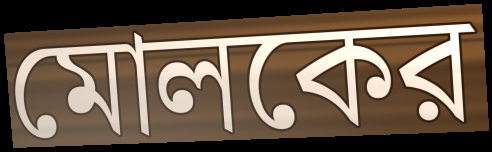
মোলকের